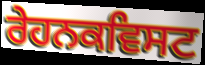
ਰੇਹਨਕਵਿਸਟ